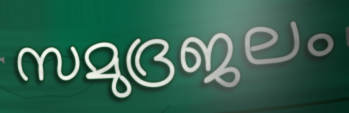
സമുദ്രജലം